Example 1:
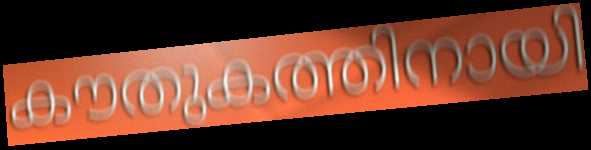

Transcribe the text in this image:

കൗതുകത്തിനായി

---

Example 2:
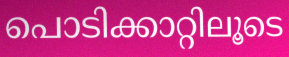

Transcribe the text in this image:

പൊടിക്കാറ്റിലൂടെ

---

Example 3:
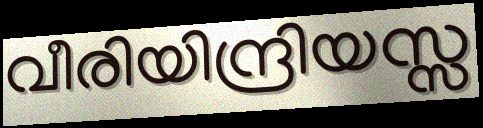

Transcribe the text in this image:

വീരിയിന്ദ്രിയസ്സ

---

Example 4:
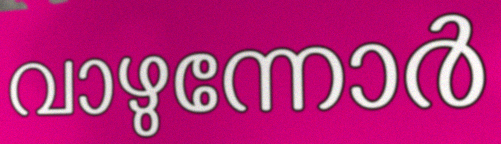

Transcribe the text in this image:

വാഴുന്നോർ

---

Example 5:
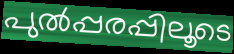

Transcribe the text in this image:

പുൽപ്പരപ്പിലൂടെ